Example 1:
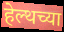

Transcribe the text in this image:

हेल्थच्या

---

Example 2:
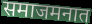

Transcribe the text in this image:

समाजमनात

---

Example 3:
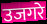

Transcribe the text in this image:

उजगरे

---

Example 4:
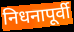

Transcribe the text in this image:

निधनापूर्वी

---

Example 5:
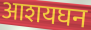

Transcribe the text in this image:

आशयघन